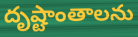
దృష్టాంతాలను